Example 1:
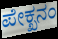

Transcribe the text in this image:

ಪೇಕ್ಖನಂ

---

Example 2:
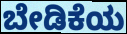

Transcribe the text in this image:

ಬೇಡಿಕೆಯ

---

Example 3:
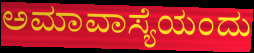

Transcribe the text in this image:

ಅಮಾವಾಸ್ಯೆಯಂದು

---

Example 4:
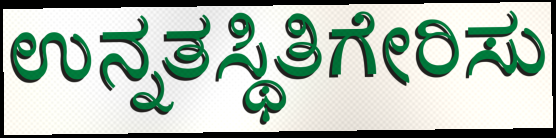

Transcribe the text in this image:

ಉನ್ನತಸ್ಥಿತಿಗೇರಿಸು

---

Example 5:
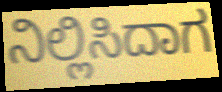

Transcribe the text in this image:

ನಿಲ್ಲಿಸಿದಾಗ